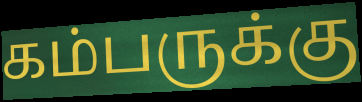
கம்பருக்கு